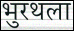
भुरथला